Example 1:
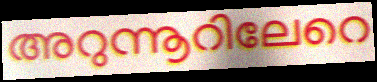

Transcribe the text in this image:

അറുന്നൂറിലേറെ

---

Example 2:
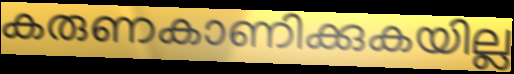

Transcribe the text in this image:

കരുണകാണിക്കുകയില്ല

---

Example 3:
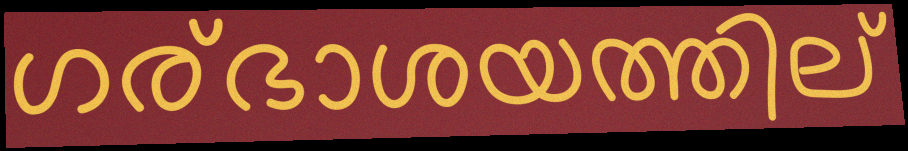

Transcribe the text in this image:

ഗര്ഭാശയത്തില്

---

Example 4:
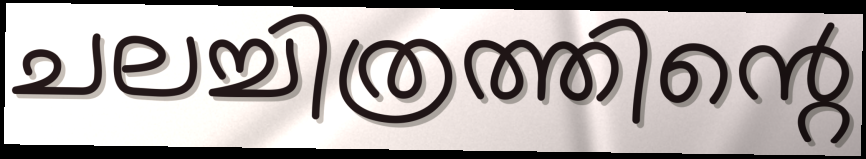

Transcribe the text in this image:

ചലച്ചിത്രത്തിന്റെ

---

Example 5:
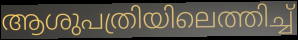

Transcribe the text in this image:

ആശുപത്രിയിലെത്തിച്ച്